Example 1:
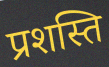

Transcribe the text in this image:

प्रशस्ति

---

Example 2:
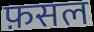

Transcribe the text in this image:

फ़सल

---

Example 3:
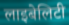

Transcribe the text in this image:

लाइबेलिटी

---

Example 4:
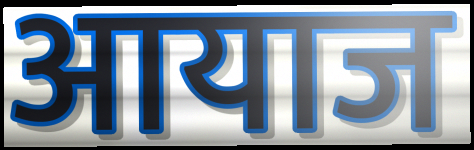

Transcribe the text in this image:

आयाज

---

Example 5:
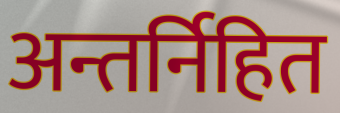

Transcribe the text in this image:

अन्तर्निहित